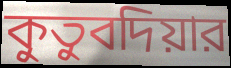
কুতুবদিয়ার